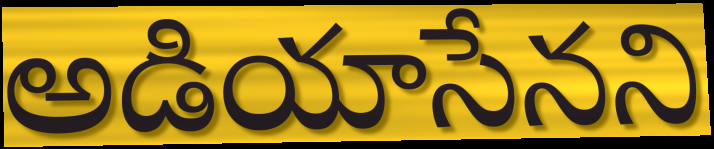
అడియాసేనని